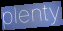
plenty